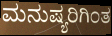
ಮನುಷ್ಯರಿಗಿಂತ